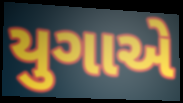
યુગાએ